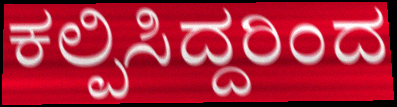
ಕಲ್ಪಿಸಿದ್ದರಿಂದ